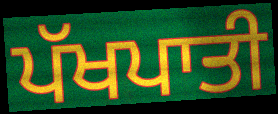
ਪੱਖਪਾਤੀ